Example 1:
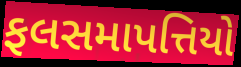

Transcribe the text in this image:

ફલસમાપત્તિયો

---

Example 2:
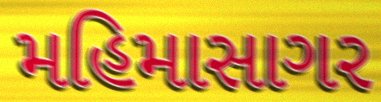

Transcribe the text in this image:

મહિમાસાગર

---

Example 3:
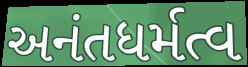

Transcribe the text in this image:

અનંતધર્મત્વ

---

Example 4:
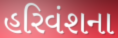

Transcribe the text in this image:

હરિવંશના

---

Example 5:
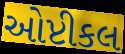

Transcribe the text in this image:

ઓપ્ટીકલ